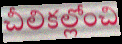
చీలికల్లోంచి